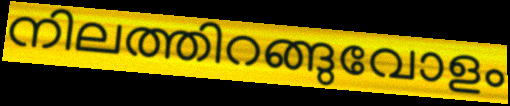
നിലത്തിറങ്ങുവോളം